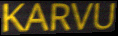
KARVU